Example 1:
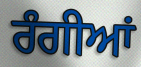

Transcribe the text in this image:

ਰੰਗੀਆਂ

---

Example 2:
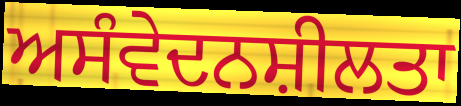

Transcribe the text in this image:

ਅਸੰਵੇਦਨਸ਼ੀਲਤਾ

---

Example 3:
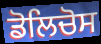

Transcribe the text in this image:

ਡੋਲਿਚੋਸ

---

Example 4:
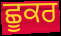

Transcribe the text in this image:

ਛੂਕਰ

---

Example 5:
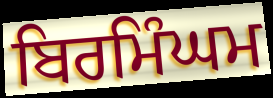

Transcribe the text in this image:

ਬਿਰਮਿੰਘਮ